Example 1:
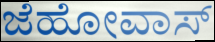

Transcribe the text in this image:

ಜೆಹೋವಾಸ್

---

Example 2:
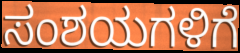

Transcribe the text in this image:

ಸಂಶಯಗಳಿಗೆ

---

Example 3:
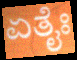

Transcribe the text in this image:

ಏತೈಃ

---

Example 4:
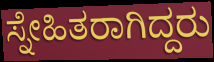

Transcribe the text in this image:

ಸ್ನೇಹಿತರಾಗಿದ್ದರು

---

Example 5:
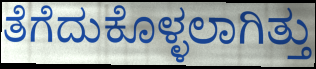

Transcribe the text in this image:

ತೆಗೆದುಕೊಳ್ಳಲಾಗಿತ್ತು